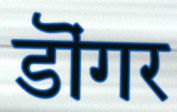
डॊंगर